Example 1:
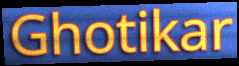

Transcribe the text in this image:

Ghotikar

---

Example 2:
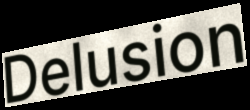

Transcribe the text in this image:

Delusion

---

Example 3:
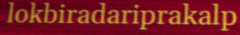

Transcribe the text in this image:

lokbiradariprakalp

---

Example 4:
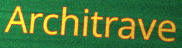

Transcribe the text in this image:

Architrave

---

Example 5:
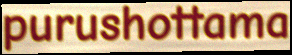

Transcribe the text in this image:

purushottama